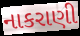
નાકરાણી